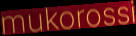
mukorossi